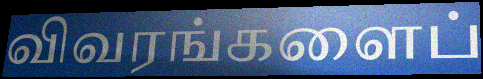
விவரங்களைப்